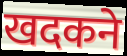
खदकने